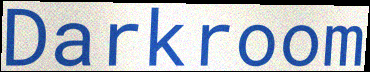
Darkroom